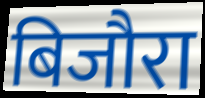
बिजौरा